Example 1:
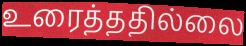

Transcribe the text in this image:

உரைத்ததில்லை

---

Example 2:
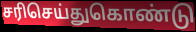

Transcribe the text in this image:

சரிசெய்துகொண்டு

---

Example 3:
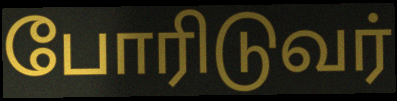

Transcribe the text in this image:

போரிடுவர்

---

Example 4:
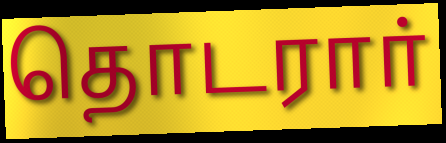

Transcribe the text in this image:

தொடரார்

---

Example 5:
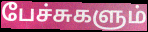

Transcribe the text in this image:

பேச்சுகளும்